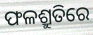
ଫଳଶ୍ରୁତିରେ